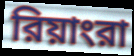
রিয়াংরা